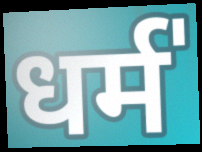
धर्म॑